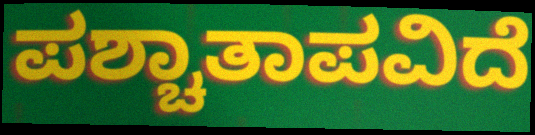
ಪಶ್ಚಾತಾಪವಿದೆ